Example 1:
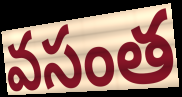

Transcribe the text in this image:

వసంత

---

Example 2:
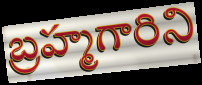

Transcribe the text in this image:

బ్రహ్మగారిని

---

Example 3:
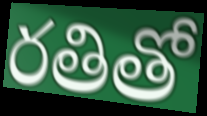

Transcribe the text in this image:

రతితో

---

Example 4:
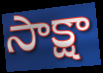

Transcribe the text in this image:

సాక్షా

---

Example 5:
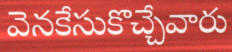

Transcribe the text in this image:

వెనకేసుకొచ్చేవారు